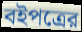
বইপত্রের